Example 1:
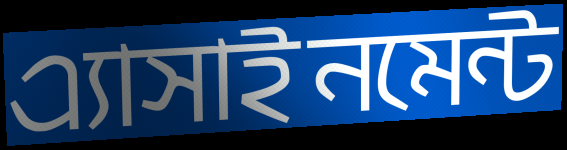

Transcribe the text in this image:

এ্যাসাইনমেন্ট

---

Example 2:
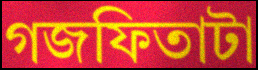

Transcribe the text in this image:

গজফিতাটা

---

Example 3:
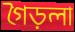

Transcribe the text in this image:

গৈড়লা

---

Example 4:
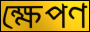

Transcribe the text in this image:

ক্ষেপণ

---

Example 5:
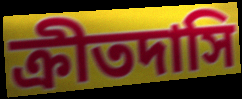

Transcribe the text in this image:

ক্রীতদাসি